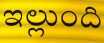
ఇల్లుంది